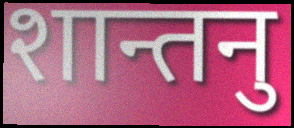
शान्तनु